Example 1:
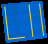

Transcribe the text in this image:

LII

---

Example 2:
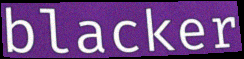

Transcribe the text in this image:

blacker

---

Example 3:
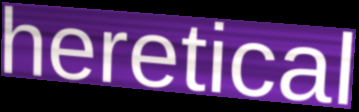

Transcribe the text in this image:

heretical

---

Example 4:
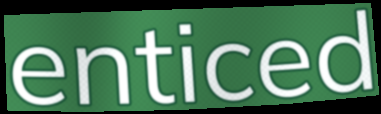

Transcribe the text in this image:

enticed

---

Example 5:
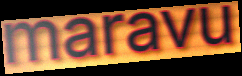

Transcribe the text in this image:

maravu